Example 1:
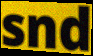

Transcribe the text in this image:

snd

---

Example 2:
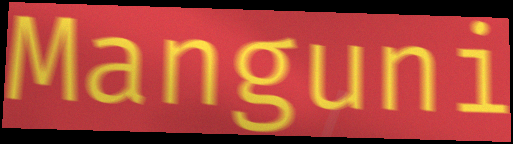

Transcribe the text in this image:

Manguni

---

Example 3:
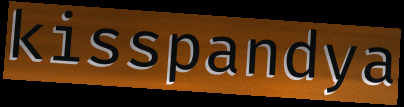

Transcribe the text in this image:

kisspandya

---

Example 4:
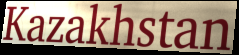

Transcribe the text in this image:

Kazakhstan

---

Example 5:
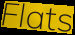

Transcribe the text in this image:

Flats